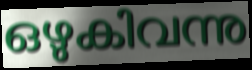
ഒഴുകിവന്നു